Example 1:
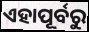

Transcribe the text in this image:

ଏହାପୂର୍ବରୁ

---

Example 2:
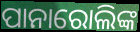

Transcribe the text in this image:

ପାନାରୋଲିଙ୍କ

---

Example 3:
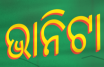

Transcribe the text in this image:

ଭାନିଟା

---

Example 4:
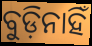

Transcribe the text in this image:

ବୁଡ଼ିନାହିଁ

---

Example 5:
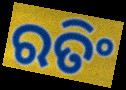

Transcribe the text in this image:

ରତିଂ